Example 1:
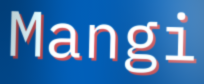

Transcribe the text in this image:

Mangi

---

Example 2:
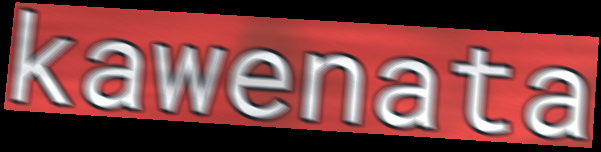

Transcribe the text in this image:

kawenata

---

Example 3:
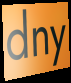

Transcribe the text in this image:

dny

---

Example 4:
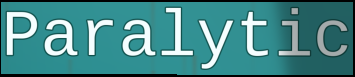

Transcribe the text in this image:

Paralytic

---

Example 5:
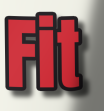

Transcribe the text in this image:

Fit